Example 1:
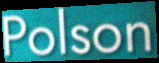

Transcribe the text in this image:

Polson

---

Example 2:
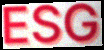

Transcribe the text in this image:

ESG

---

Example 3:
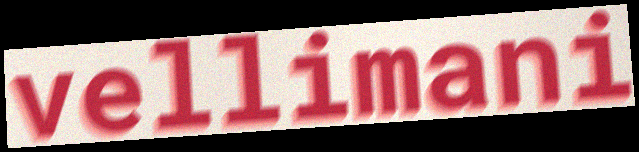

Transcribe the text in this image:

vellimani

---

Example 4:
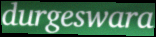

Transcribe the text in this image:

durgeswara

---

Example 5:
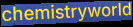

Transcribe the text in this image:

chemistryworld